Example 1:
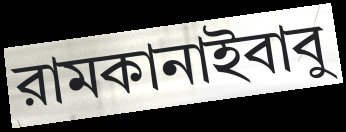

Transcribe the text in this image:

রামকানাইবাবু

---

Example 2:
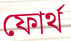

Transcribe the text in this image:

ফোর্থ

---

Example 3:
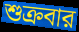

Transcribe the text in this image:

শুক্রবার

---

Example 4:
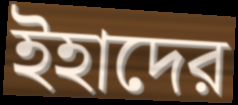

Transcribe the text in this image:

ইহাদের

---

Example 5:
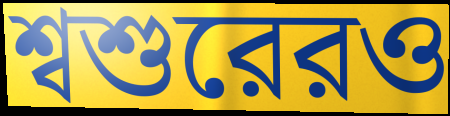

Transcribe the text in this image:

শ্বশুরেরও